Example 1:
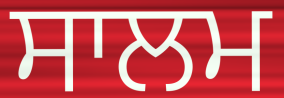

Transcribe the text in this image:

ਸਾਲਮ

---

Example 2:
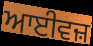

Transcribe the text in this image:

ਆਈਵਜ਼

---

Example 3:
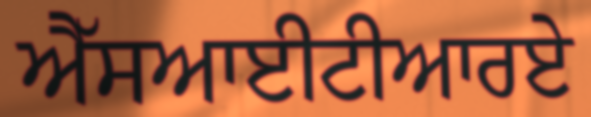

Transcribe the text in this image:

ਐੱਸਆਈਟੀਆਰਏ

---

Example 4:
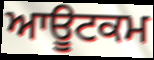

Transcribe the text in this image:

ਆਊਟਕਮ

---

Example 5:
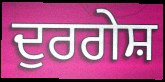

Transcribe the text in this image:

ਦੁਰਗੇਸ਼